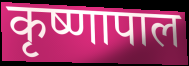
कृष्णापाल